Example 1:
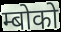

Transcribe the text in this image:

म्बोको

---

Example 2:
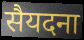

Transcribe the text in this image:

सैयदना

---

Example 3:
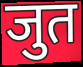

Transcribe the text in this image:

जुत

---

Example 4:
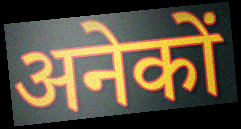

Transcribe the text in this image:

अनेकों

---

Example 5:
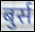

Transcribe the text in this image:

बुर्स